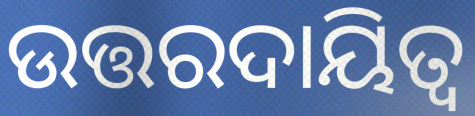
ଉତ୍ତରଦାୟିତ୍ଵ